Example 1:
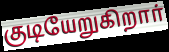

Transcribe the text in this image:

குடியேறுகிறார்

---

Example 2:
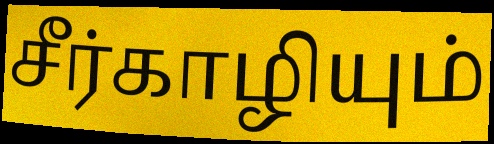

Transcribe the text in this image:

சீர்காழியும்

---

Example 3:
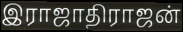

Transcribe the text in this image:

இராஜாதிராஜன்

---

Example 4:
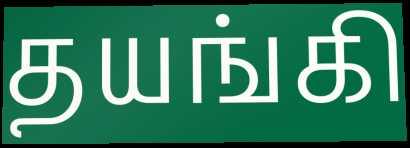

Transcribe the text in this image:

தயங்கி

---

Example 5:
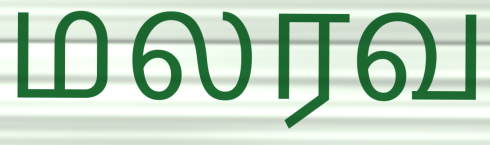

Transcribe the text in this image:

மலரவ